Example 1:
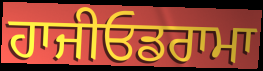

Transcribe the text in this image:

ਹਾਜੀਓਡਰਾਮਾ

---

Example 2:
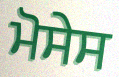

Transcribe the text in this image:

ਮੋਸੇਸ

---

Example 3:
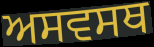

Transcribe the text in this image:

ਅਸਵਸਥ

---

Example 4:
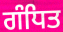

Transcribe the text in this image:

ਗੰਧਿਤ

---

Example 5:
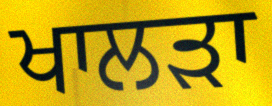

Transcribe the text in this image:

ਖਾਲੜਾ